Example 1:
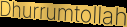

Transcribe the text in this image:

Dhurrumtollah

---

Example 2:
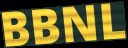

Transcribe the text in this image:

BBNL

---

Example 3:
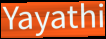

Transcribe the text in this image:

Yayathi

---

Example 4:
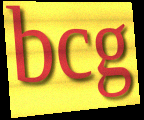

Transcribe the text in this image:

bcg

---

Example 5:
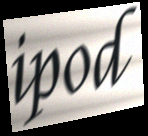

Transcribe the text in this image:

ipod